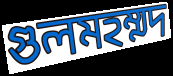
গুলমহম্মদ